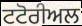
ਟਟੋਰੀਅਲ